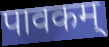
पावकम्